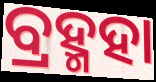
ବ୍ରହ୍ମହା